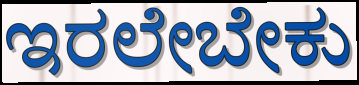
ಇರಲೇಬೇಕು